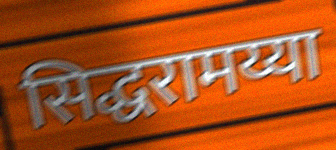
सिद्धरामय्या